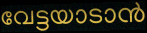
വേട്ടയാടാൻ